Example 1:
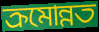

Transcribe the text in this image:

ক্রমোন্নত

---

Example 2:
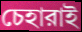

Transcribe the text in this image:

চেহারাই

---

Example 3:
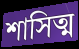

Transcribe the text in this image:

শাসিত্ম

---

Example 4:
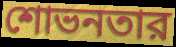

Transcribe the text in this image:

শোভনতার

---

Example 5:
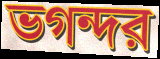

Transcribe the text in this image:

ভগন্দর